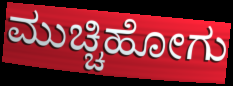
ಮುಚ್ಚಿಹೋಗು